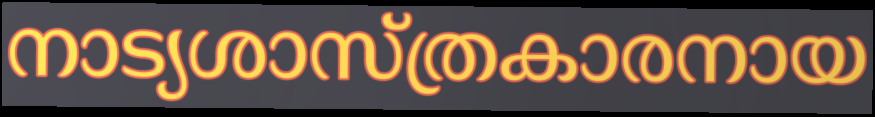
നാട്യശാസ്ത്രകാരനായ